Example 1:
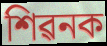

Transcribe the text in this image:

শিৱনক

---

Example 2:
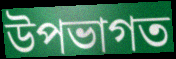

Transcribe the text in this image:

উপভাগত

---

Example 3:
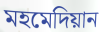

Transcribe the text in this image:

মহমেদিয়ান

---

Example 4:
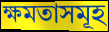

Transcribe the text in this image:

ক্ষমতাসমূহ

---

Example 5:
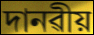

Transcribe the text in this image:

দানৱীয়